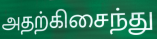
அதற்கிசைந்து